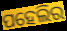
ପହେଲିର